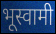
भूस्वामी